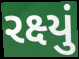
રક્ષ્યું